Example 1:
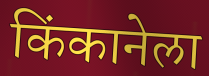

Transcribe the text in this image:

किंकानेला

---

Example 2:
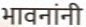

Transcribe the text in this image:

भावनांनी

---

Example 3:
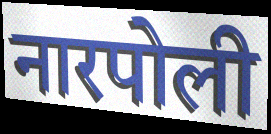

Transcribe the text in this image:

नारपोली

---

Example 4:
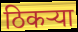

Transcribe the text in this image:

ठिकर्‍या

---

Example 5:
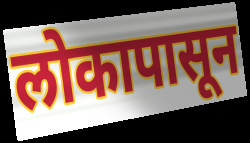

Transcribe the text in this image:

लोकापासून